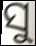
ସୁ